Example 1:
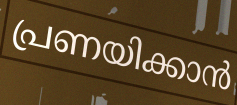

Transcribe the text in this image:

പ്രണയിക്കാൻ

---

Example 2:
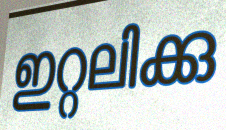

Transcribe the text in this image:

ഇറ്റലിക്കു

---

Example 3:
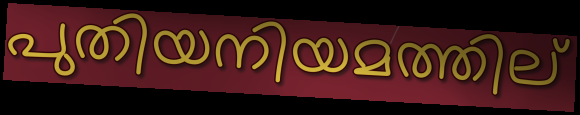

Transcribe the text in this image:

പുതിയനിയമത്തില്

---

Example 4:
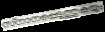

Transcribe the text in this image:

സ്‌നാനപ്പെടുത്തുകയും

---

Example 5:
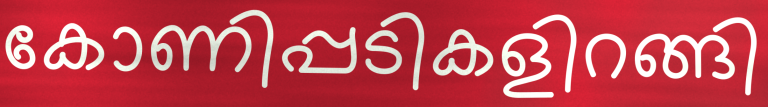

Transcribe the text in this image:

കോണിപ്പടികളിറങ്ങി